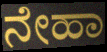
ನೇಹಾ